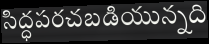
సిద్ధపరచబడియున్నది